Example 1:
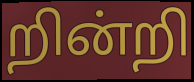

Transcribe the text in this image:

றின்றி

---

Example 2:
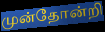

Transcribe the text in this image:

முன்தோன்றி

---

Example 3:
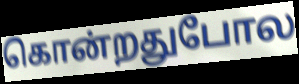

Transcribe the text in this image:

கொன்றதுபோல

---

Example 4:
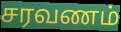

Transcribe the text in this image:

சரவணம்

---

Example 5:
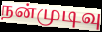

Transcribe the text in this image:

நன்முடிவு